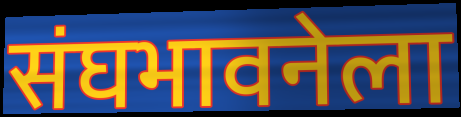
संघभावनेला